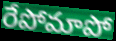
రేపోమాపో